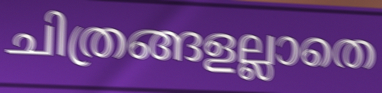
ചിത്രങ്ങളല്ലാതെ